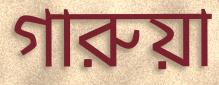
গারুয়া